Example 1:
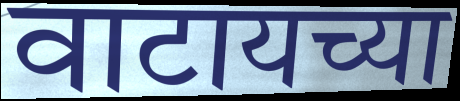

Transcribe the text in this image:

वाटायच्या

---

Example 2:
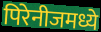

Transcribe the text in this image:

पिरेनीजमध्ये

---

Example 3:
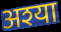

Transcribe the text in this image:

अश्या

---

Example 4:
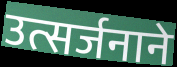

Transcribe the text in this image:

उत्सर्जनाने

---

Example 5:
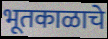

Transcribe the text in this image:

भूतकाळाचे